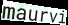
maurvi